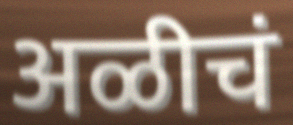
अळीचं